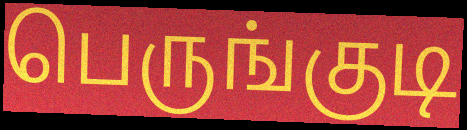
பெருங்குடி